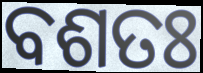
ବଶତଃ